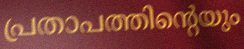
പ്രതാപത്തിന്റെയും